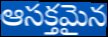
ఆసక్తమైన